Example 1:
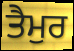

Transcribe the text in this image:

ਤੈਮੁਰ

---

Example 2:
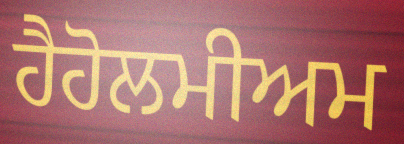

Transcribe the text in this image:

ਹੈਹੋਲਮੀਅਮ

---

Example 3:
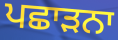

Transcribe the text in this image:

ਪਛਾੜਨਾ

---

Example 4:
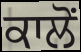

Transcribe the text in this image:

ਕਾਲੋਂ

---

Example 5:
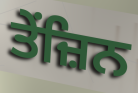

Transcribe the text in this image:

ਤੇਂਜ਼ਿਨ